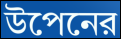
উপেনের